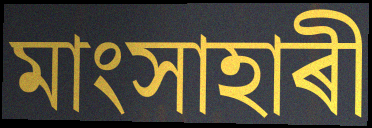
মাংসাহাৰী